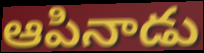
ఆపినాడు